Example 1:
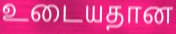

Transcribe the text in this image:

உடையதான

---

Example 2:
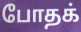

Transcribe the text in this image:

போதக்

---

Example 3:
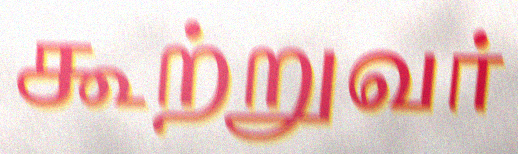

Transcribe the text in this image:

கூற்றுவர்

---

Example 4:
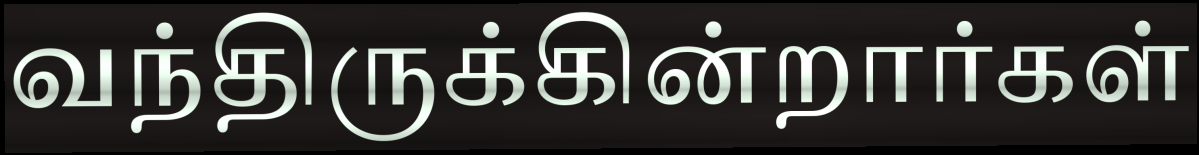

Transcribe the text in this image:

வந்திருக்கின்றார்கள்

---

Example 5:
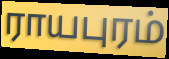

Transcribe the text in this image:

ராயபுரம்